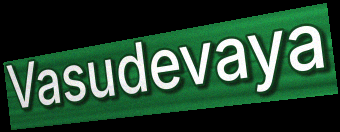
Vasudevaya